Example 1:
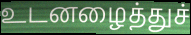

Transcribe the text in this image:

உடனழைத்துச்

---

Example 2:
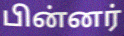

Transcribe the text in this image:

பின்னர்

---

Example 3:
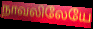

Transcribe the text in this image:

நாவலிலேயே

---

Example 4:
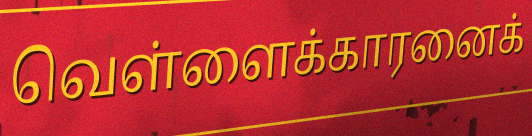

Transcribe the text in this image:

வெள்ளைக்காரனைக்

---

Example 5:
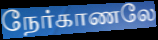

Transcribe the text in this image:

நேர்காணலே